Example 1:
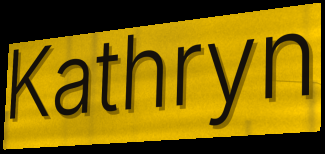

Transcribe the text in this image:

Kathryn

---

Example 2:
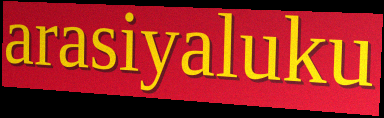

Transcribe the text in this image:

arasiyaluku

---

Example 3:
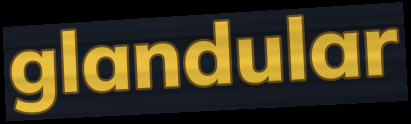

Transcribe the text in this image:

glandular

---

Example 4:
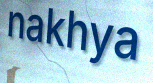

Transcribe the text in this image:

nakhya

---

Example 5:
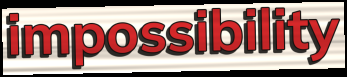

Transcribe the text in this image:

impossibility